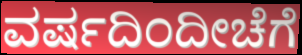
ವರ್ಷದಿಂದೀಚೆಗೆ